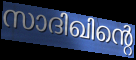
സാദിഖിന്റെ